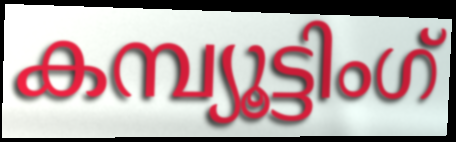
കമ്പ്യൂട്ടിംഗ്